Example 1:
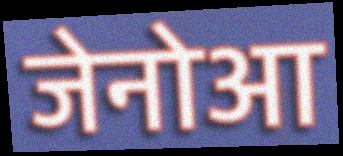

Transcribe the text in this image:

जेनोआ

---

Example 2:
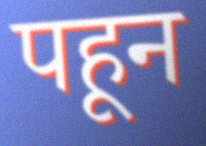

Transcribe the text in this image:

पहून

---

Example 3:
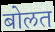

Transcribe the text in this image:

बोलत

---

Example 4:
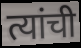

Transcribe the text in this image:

त्यांची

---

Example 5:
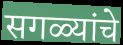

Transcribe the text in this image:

सगळ्यांचे